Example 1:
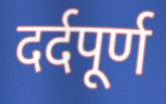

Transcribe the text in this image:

दर्दपूर्ण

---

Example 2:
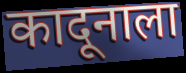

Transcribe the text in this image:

कादूनाला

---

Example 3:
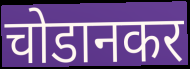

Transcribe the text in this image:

चोडानकर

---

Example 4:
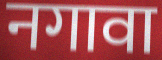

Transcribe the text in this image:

नगावा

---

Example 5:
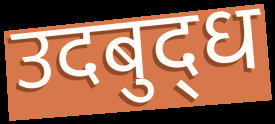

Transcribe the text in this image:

उदबुद्ध